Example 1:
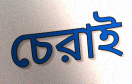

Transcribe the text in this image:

চেরাই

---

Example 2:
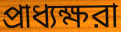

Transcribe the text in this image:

প্রাধ্যক্ষরা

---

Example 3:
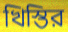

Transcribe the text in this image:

খিস্তির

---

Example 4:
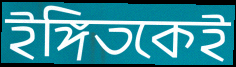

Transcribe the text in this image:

ইঙ্গিতকেই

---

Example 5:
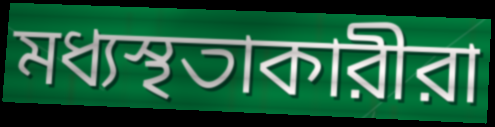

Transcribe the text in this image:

মধ্যস্থতাকারীরা